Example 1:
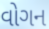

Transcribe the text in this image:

વોગન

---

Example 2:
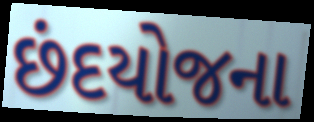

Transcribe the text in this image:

છંદયોજના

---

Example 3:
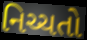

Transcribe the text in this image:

નિચ્ચતો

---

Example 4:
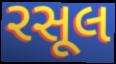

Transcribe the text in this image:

રસૂલ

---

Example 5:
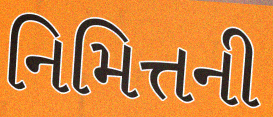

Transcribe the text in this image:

નિમિત્તની